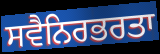
ਸਵੈਨਿਰਭਰਤਾ